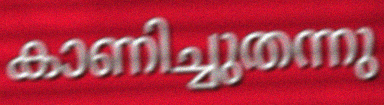
കാണിച്ചുതന്നു